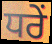
ਧਰੇਂ